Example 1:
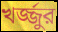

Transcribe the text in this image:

খর্জ্জুর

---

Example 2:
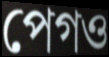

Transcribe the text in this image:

পেগও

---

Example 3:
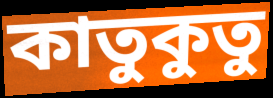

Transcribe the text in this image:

কাতুকুতু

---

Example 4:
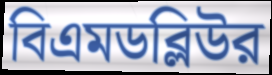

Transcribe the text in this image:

বিএমডব্লিউর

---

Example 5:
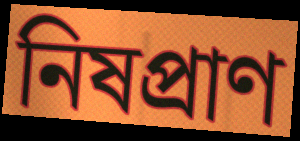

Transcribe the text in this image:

নিষপ্রাণ